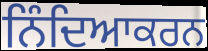
ਨਿੰਦਿਆਕਰਨ